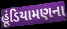
હૂંડિયામણના